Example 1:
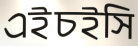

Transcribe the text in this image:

এইচইসি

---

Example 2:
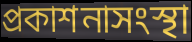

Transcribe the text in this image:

প্রকাশনাসংস্থা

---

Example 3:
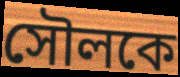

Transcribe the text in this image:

সৌলকে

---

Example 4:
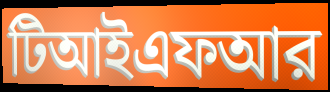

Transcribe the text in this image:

টিআইএফআর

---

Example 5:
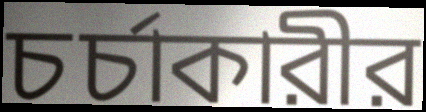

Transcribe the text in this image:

চর্চাকারীর